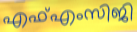
എഫ്എംസിജി